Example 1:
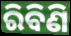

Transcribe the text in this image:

ରିବିଣି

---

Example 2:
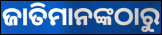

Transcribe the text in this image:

ଜାତିମାନଙ୍କଠାରୁ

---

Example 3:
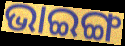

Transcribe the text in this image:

ଭାଇଙ୍ଗ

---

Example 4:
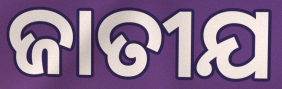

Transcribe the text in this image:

ଜାତୀଯ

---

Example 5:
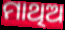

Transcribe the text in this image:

ମାଥିଅ